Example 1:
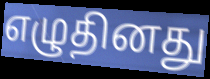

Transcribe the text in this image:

எழுதினது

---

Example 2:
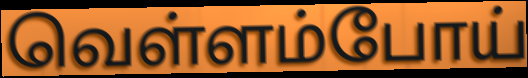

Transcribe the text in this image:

வெள்ளம்போய்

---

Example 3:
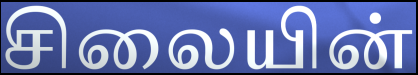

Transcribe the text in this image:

சிலையின்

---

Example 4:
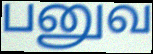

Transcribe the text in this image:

பனுவ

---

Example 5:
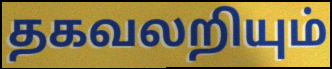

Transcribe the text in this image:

தகவலறியும்